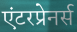
एंटरप्रेनर्स